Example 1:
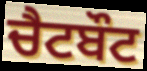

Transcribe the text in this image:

ਚੈਟਬੌਟ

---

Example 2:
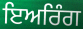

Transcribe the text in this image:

ਇਅਰਿੰਗ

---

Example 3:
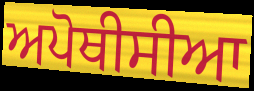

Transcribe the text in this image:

ਅਪੋਥੀਸੀਆ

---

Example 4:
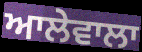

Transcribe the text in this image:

ਆਲੇਵਾਲਾ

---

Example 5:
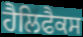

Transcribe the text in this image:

ਹੈਲਿਫੈਕਸ